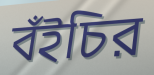
বঁইচির